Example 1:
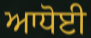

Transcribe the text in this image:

ਆਧੋਈ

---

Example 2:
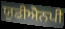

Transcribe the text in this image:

ਯੂਡੀਐਨਪੀ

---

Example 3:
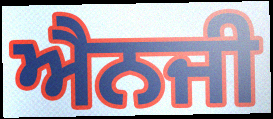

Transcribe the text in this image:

ਐਨਜੀ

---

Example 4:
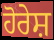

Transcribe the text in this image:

ਹੋਰੇਸ਼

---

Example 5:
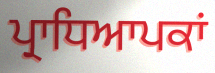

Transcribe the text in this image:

ਪ੍ਰਾਧਿਆਪਕਾਂ